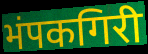
भंपकगिरी